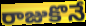
రాజుకొనే